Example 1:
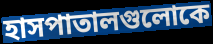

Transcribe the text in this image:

হাসপাতালগুলোকে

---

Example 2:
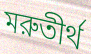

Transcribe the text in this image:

মরুতীর্থ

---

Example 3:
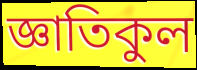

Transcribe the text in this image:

জ্ঞাতিকুল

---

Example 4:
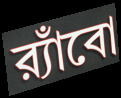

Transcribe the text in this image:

র‍্যাঁবো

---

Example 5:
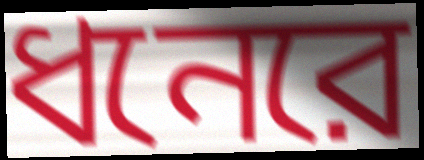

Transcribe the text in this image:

ধনেরে